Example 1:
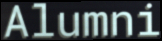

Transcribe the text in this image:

Alumni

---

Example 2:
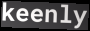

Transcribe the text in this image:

keenly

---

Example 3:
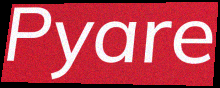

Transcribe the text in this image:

Pyare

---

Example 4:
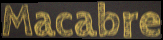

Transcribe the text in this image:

Macabre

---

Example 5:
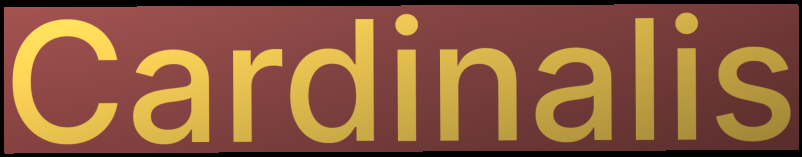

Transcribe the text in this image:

Cardinalis